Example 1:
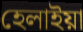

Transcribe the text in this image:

হেলাইয়া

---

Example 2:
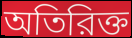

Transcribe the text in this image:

অতিরিক্ত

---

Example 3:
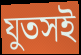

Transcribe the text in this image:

যুতসই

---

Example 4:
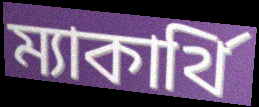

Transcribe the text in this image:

ম্যাকার্থি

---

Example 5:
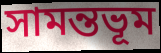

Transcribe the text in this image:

সামন্তভূম